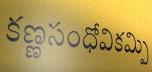
కణ్ణసంధోవికమ్పి